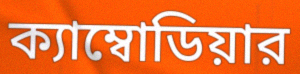
ক্যাম্বোডিয়ার